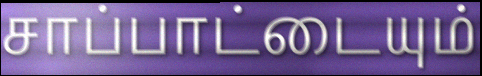
சாப்பாட்டையும்